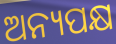
ଅନ୍ୟପକ୍ଷ